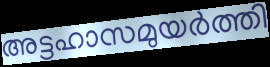
അട്ടഹാസമുയർത്തി